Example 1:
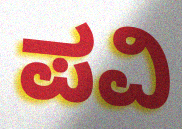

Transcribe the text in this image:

ಪವಿ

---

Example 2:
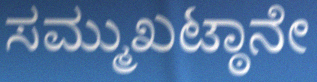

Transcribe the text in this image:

ಸಮ್ಮುಖಟ್ಠಾನೇ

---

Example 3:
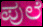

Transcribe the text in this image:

ಪುಲೆ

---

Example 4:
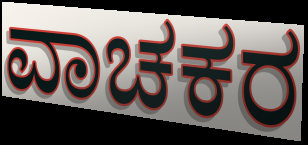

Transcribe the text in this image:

ವಾಚಕರ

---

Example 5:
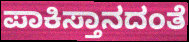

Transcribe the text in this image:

ಪಾಕಿಸ್ತಾನದಂತೆ